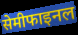
सेमीफाइनल